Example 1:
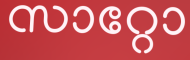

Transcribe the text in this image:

സാറ്റോ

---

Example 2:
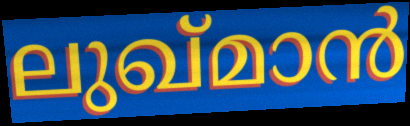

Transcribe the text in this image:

ലുഖ്മാൻ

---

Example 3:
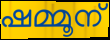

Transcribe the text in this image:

ഷമ്മൂന്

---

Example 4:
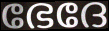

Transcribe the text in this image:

ഭേദേ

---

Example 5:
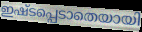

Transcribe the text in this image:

ഇഷ്ടപ്പെടാതെയായി